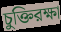
চুক্তিরক্ষা